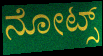
ನೋಟ್ಸ್